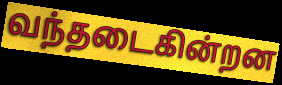
வந்தடைகின்றன